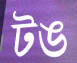
টঙ